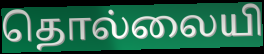
தொல்லையி